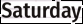
Saturday